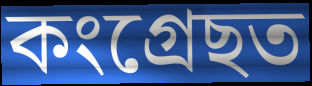
কংগ্ৰেছত